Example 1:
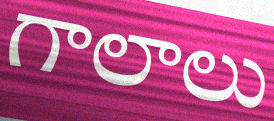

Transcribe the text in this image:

గాలాలు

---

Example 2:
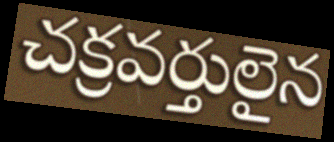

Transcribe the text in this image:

చక్రవర్తులైన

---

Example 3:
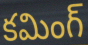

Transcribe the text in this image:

కమింగ్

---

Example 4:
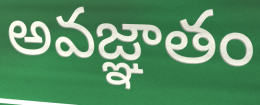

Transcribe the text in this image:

అవజ్ఞాతం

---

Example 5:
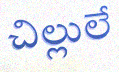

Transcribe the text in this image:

చిల్లులే